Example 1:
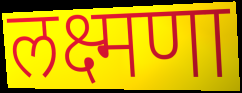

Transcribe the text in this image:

लक्ष्मणा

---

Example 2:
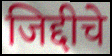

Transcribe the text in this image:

जिद्दीचे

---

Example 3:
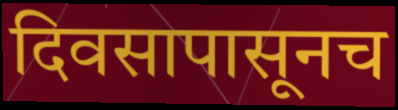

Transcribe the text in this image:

दिवसापासूनच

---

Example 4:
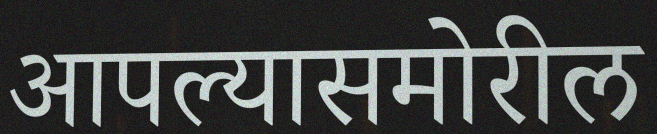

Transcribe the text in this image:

आपल्यासमोरील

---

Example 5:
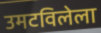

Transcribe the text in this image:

उमटविलेला